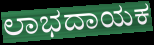
ಲಾಭದಾಯಕ